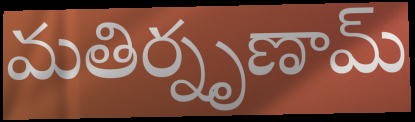
మతిర్నృణామ్